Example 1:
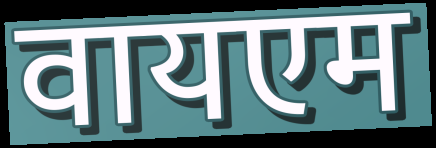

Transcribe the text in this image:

वायएम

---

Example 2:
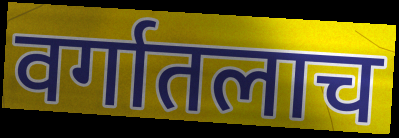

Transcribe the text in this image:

वर्गातलाच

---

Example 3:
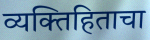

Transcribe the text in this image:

व्यक्तिहिताचा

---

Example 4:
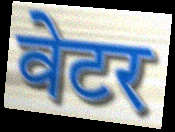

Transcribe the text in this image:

वेटर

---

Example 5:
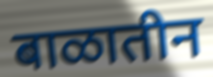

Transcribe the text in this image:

बाळातीन